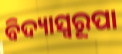
ବିଦ୍ୟାସ୍ୱରୂପା